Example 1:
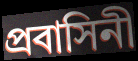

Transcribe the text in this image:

প্রবাসিনী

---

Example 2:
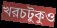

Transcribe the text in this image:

খরচটুকুও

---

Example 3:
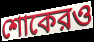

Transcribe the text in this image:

শোকেরও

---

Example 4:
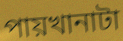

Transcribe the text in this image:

পায়খানাটা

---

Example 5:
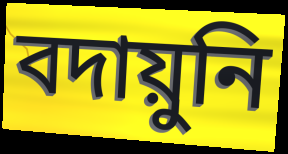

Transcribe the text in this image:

বদায়ুনি